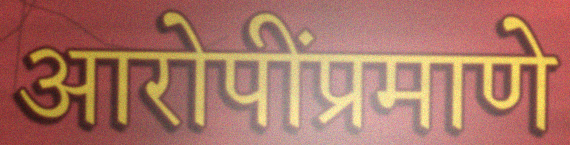
आरोपींप्रमाणे